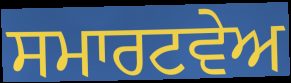
ਸਮਾਰਟਵੇਅ